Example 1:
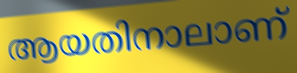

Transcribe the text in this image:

ആയതിനാലാണ്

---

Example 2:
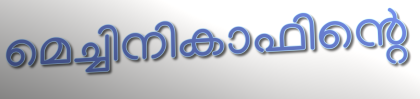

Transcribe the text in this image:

മെച്ചിനികാഫിന്റെ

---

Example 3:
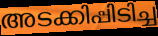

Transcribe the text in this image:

അടക്കിപ്പിടിച്ച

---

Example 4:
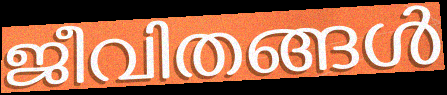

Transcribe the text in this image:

ജീവിതങ്ങൾ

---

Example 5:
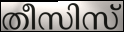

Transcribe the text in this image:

തീസിസ്